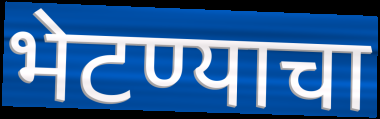
भेटण्याचा